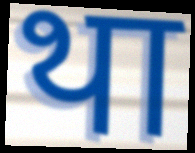
था